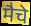
मैचे